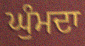
ਘੁੰਮਦਾ